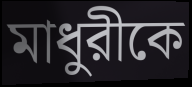
মাধুরীকে